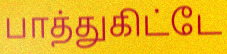
பாத்துகிட்டே